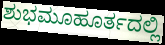
ಶುಭಮೂಹೂರ್ತದಲ್ಲಿ